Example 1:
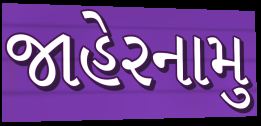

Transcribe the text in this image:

જાહેરનામુ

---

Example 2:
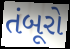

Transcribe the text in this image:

તંબૂરો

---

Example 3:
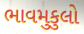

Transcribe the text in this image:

ભાવમુકુલો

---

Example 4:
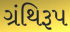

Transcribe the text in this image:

ગ્રંથિરૂપ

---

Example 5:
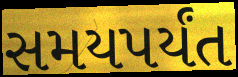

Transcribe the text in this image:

સમયપર્યંત